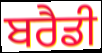
ਬਰੈਡੀ